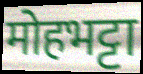
मोहभट्टा